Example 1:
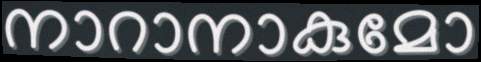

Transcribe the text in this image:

നാറാനാകുമോ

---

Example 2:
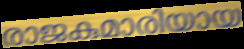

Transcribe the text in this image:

രാജകുമാരിയായ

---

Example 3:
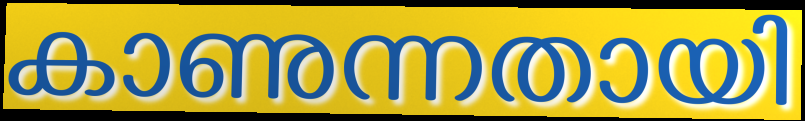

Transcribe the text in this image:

കാണുന്നതായി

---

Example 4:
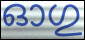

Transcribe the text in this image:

ഓഗു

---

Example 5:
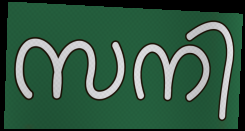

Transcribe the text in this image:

സനി